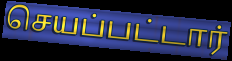
செயப்பட்டார்